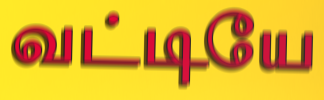
வட்டியே